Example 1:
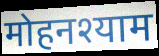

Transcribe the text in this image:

मोहनश्याम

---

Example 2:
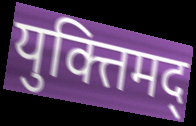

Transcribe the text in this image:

युक्तिमद्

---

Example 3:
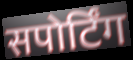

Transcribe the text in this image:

सपोर्टिंग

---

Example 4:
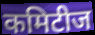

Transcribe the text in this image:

कमिटीज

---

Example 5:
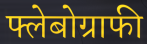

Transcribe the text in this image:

फ्लेबोग्राफी